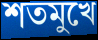
শতমুখে